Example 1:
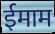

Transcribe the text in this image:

ईमाम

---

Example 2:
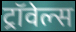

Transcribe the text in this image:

ट्रॉवेल्स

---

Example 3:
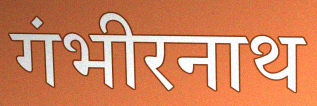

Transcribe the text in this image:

गंभीरनाथ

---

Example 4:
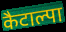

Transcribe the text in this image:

कैटाल्पा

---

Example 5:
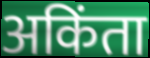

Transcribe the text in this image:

अकिंता